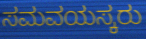
ಸಮವಯಸ್ಕರು